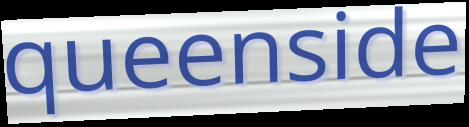
queenside